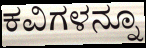
ಕವಿಗಳನ್ನೂ